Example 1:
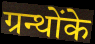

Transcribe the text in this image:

ग्रन्थोंके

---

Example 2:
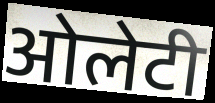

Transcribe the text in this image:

ओलेटी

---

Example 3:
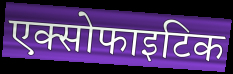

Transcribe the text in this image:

एक्सोफाइटिक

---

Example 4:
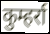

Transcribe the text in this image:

कुम्हर्रा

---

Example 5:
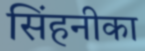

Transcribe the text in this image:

सिंहनीका